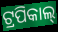
ଟ୍ରପିକାଲ୍